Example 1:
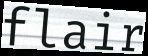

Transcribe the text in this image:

flair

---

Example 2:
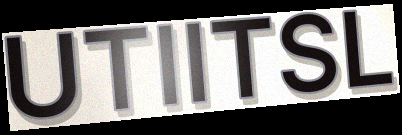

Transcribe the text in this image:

UTIITSL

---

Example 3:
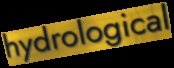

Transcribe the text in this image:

hydrological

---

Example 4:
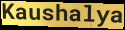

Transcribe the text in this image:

Kaushalya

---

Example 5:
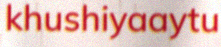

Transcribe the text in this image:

khushiyaaytu